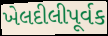
ખેલદીલીપૂર્વક